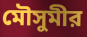
মৌসুমীর